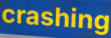
crashing